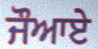
ਜੌਆਏ